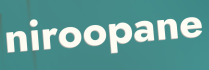
niroopane